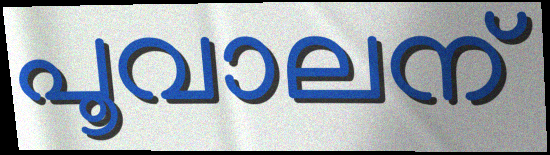
പൂവാലന്